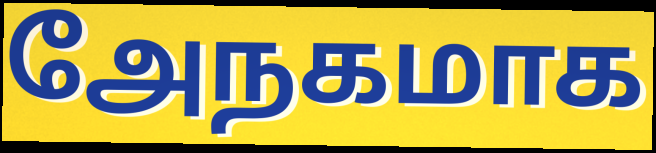
அேநகமாக